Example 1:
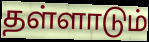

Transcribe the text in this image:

தள்ளாடும்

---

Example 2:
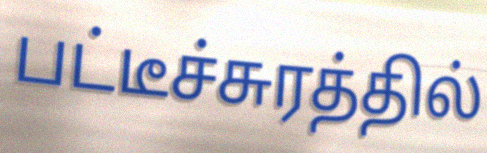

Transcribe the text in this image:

பட்டீச்சுரத்தில்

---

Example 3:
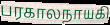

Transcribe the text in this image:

பரகாலநாயகி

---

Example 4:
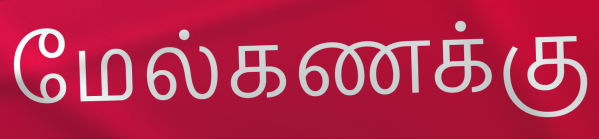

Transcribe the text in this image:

மேல்கணக்கு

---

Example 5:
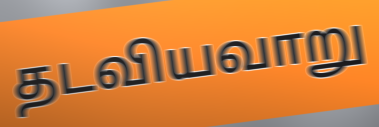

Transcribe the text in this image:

தடவியவாறு